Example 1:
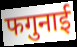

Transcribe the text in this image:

फगुनाई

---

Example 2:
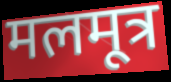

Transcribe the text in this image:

मलमूत्र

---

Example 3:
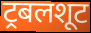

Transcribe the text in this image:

ट्रबलशूट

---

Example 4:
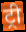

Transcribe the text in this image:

ट्री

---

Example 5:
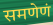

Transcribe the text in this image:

समणेणं